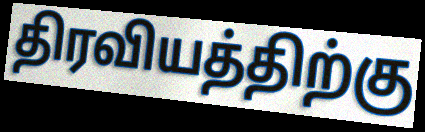
திரவியத்திற்கு